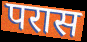
परास